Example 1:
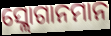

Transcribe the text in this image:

ସ୍ଲୋଗାନମାନ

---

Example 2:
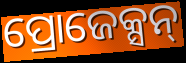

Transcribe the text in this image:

ପ୍ରୋଜେକ୍ସନ୍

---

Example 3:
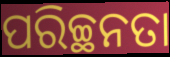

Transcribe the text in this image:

ପରିଚ୍ଛନତା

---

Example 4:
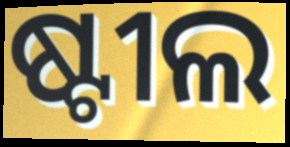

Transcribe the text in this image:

ଷ୍ଟୀଲ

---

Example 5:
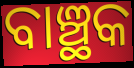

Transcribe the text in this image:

ବାଞ୍ଛକ